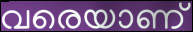
വരെയാണ്